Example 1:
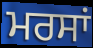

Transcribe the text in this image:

ਮਰਸਾਂ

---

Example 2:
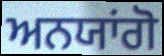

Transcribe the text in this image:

ਅਨਯਾਂਗੋ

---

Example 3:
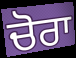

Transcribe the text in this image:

ਚੋਰਾ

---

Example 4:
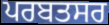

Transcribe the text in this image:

ਪਰਬਤਸਰ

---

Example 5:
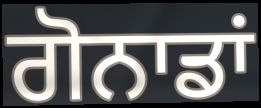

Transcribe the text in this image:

ਗੋਨਾਡਾਂ